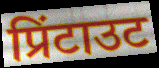
प्रिंटाउट